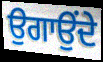
ਉਗਾਉਂਦੇ